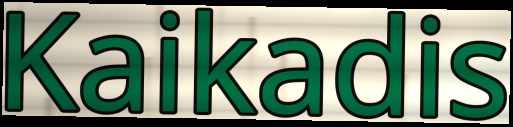
Kaikadis